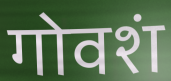
गोवशं